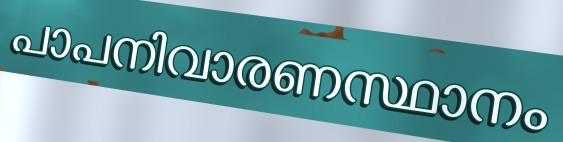
പാപനിവാരണസ്ഥാനം